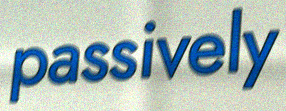
passively